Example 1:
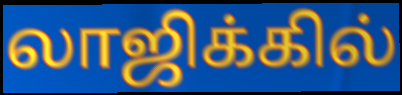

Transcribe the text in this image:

லாஜிக்கில்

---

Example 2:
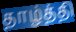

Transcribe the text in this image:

தாழ்த்தி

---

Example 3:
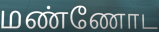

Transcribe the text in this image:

மண்ணோட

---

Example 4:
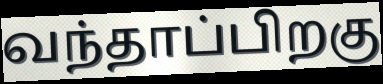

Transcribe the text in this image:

வந்தாப்பிறகு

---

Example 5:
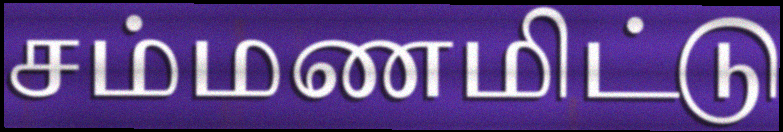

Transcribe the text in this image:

சம்மணமிட்டு